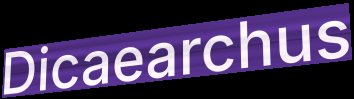
Dicaearchus